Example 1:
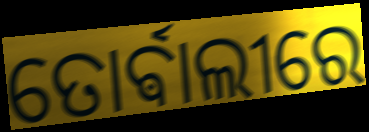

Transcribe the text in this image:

ତୋର୍ଵାଲୀରେ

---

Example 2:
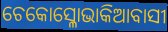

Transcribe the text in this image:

ଚେକୋସ୍ଳୋଭାକିଆବାସୀ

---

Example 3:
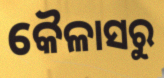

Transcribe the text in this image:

କୈଳାସରୁ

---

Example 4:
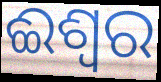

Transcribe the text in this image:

ଈଶ୍ଵର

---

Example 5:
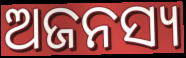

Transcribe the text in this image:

ଅଜନସ୍ୟ